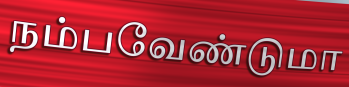
நம்பவேண்டுமா